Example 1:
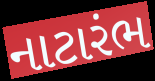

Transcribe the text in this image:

નાટારંભ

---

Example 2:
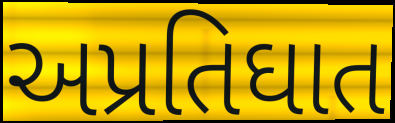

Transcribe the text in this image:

અપ્રતિઘાત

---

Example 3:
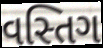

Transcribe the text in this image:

વસ્તિગ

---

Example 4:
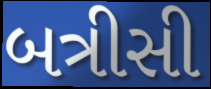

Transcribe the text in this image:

બત્રીસી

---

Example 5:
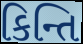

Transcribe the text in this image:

કિન્તિ